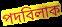
পদবিলাক